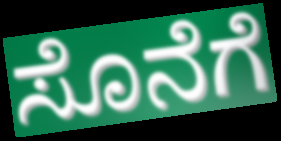
ಸೊನೆಗೆ